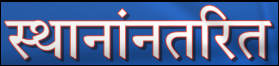
स्थानांनतरित